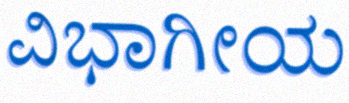
ವಿಭಾಗೀಯ